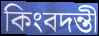
কিংবদন্তী